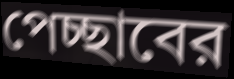
পেচ্ছাবের